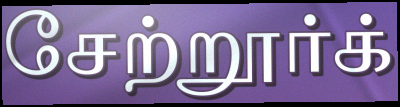
சேற்றூர்க்